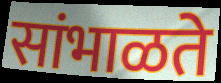
सांभाळते